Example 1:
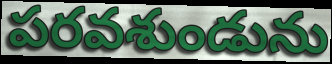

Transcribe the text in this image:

పరవశుండును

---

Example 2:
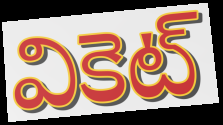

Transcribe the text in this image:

వికెట్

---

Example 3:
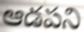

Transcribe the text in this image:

ఆడపని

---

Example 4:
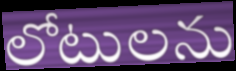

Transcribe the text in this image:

లోటులను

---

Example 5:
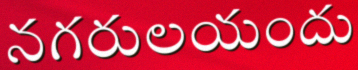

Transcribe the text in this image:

నగరులయందు